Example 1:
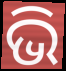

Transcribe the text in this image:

ଭି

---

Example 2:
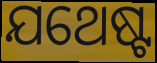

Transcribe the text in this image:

ଯଥେଷ୍ଟ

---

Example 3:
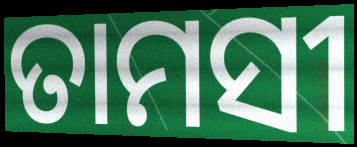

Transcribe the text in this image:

ତାମସୀ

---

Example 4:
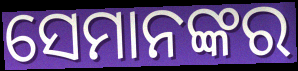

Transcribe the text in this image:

ସେମାନଙ୍କର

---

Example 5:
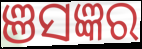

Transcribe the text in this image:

ଞସଜ୍ଞର